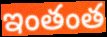
ఇంతంత